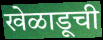
खेळाडूची